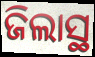
ଜିଲାସ୍ଥ